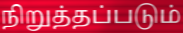
நிறுத்தப்படும்